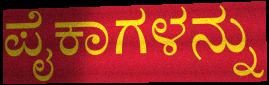
ಪೈಕಾಗಳನ್ನು